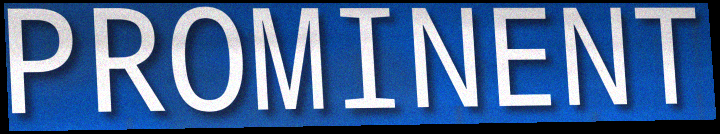
PROMINENT